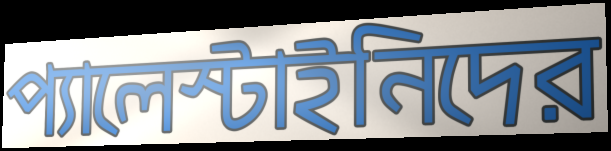
প্যালেস্টাইনিদের